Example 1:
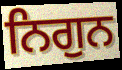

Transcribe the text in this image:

ਨਿਗੁਨ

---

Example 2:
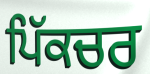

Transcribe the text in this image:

ਪਿੱਕਚਰ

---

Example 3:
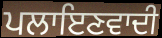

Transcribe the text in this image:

ਪਲਾਇਣਵਾਦੀ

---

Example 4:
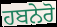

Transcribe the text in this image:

ਹਬਨੇਰੋ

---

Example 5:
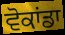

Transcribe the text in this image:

ਵੋਕਾਂਡਾ